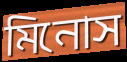
মিনোস